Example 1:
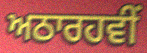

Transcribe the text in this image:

ਅਠਾਰਹਵੀਂ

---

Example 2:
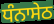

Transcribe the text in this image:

ਧੰਨਾਸੇਠ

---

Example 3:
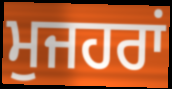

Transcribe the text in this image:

ਮੁਜਹਰਾਂ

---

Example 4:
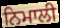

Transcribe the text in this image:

ਨਿਮਾਲੀ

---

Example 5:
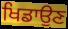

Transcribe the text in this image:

ਖਿਡਾਉਣ